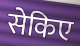
सेकिए